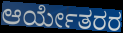
ಆರ್ಯೇತರರ